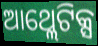
ଆଥ୍ଲେଟିକ୍ସ